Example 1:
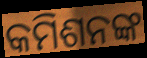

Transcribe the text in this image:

କମିଶନଙ୍କ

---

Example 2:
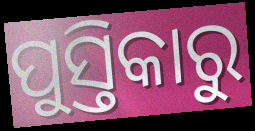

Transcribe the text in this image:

ପୁସ୍ତିକାରୁ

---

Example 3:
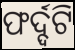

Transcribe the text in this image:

ଫର୍ଦ୍ଦଟି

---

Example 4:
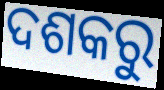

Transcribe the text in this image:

ଦଶକରୁ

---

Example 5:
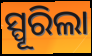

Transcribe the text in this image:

ସ୍ପୂରିଲା